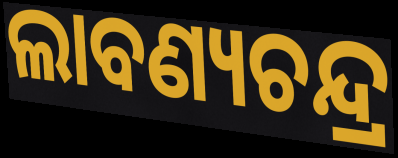
ଲାବଣ୍ୟଚନ୍ଦ୍ର